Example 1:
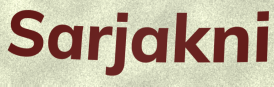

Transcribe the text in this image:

Sarjakni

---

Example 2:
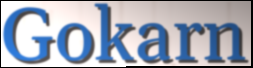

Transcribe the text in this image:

Gokarn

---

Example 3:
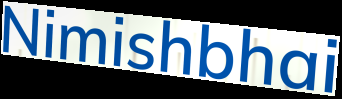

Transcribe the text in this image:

Nimishbhai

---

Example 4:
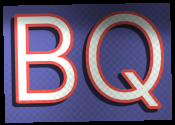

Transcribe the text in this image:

BQ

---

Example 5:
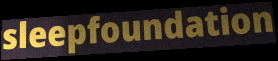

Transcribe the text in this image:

sleepfoundation